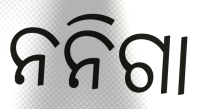
ନନିଗା